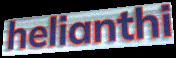
helianthi